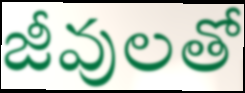
జీవులతో